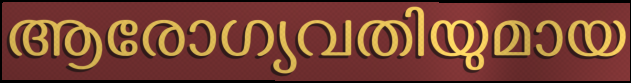
ആരോഗ്യവതിയുമായ